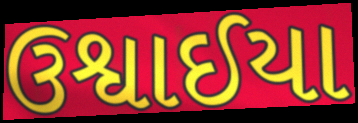
ઉશ્વાઈયા